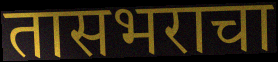
तासभराचा